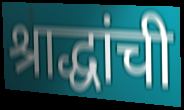
श्राद्धांची